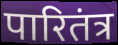
पारितंत्र